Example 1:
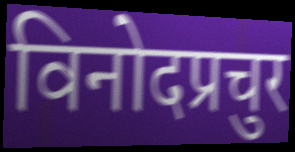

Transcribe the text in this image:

विनोदप्रचुर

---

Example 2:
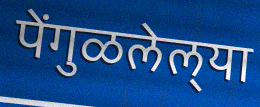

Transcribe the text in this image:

पेंगुळलेल्या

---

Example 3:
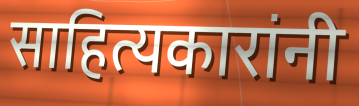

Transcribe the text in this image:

साहित्यकारांनी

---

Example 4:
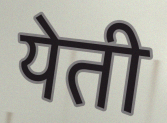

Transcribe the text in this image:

येती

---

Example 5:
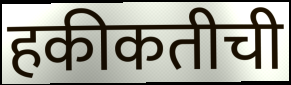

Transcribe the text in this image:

हकीकतीची